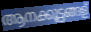
ആനക്കൂട്ടങ്ങള്